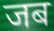
जब